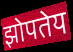
झोपतेय